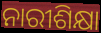
ନାରୀଶିକ୍ଷା